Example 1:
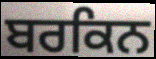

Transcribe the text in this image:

ਬਰਕਿਨ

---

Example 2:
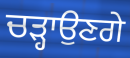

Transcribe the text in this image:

ਚੜ੍ਹਾਉਣਗੇ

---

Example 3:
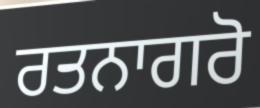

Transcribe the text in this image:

ਰਤਨਾਗਰੋ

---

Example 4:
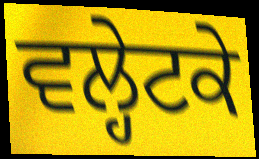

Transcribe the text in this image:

ਵਲ੍ਹੇਟਕੇ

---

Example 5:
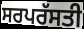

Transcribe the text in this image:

ਸਰਪਰੱਸਤੀ